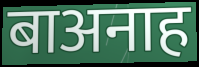
बाअनाह